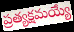
ప్రత్యక్షమయ్యే